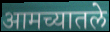
आमच्यातले